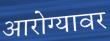
आरोग्यावर